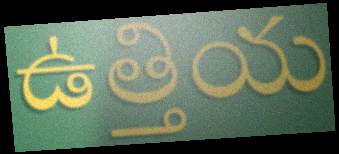
ఉత్తియ